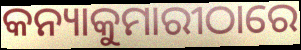
କନ୍ୟାକୁମାରୀଠାରେ